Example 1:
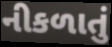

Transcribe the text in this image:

નીકળાતું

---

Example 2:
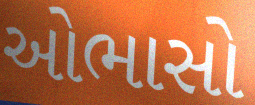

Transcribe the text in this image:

ઓભાસો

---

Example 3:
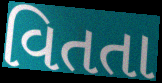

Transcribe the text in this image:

વિતતા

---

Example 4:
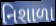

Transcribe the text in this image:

નિશાળા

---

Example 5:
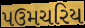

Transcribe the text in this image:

પઉમચરિય